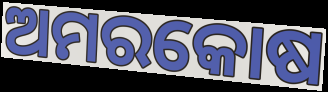
ଅମରକୋଷ